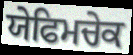
ਯੇਫਿਮਚੇਕ